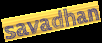
savadhan